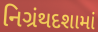
નિગ્રંથદશામાં